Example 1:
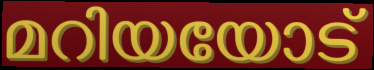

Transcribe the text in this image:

മറിയയോട്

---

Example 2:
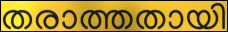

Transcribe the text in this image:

തരാത്തതായി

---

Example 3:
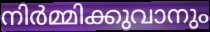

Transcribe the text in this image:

നിർമ്മിക്കുവാനും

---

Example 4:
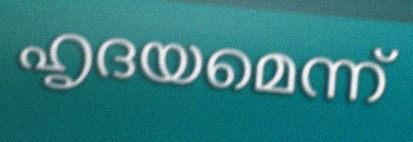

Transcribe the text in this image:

ഹൃദയമെന്ന്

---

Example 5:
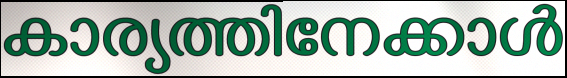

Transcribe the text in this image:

കാര്യത്തിനേക്കാൾ